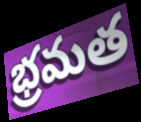
భ్రమత